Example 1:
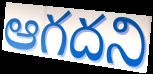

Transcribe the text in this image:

ఆగదని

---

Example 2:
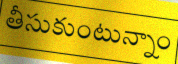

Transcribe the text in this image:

తీసుకుంటున్నాం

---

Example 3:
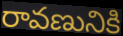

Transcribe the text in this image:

రావణునికి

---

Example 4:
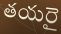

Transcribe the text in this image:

తయరై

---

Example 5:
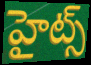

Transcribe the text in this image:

హైట్స్